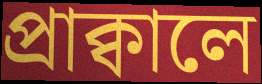
প্রাক্বালে